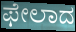
ಫೇಲಾದ